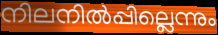
നിലനിൽപ്പില്ലെന്നും